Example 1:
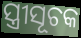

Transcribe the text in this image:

ସ୍ତ୍ରୀସୂଚକ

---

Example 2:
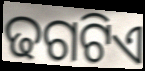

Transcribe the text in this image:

ଢଗଟିଏ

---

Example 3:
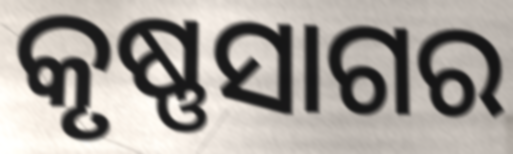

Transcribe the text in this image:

କୃଷ୍ଣସାଗର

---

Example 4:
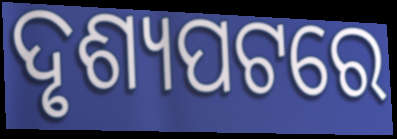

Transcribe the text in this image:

ଦୃଶ୍ୟପଟରେ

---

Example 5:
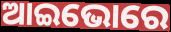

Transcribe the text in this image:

ଆଇଭୋରେ